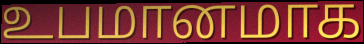
உபமானமாக